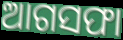
ଆଗସଫା